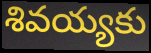
శివయ్యకు